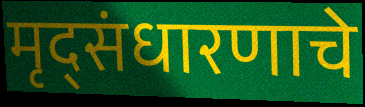
मृद्संधारणाचे